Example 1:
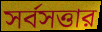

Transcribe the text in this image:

সর্বসত্তার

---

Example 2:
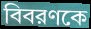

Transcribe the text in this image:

বিবরণকে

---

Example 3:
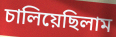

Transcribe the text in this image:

চালিয়েছিলাম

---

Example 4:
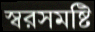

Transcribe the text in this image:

স্বরসমষ্টি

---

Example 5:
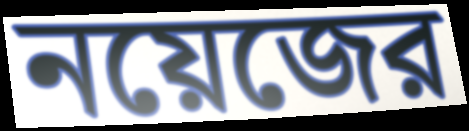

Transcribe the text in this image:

নয়েজের